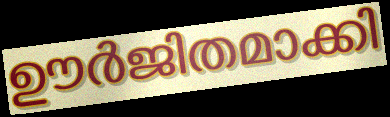
ഊർജിതമാക്കി